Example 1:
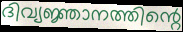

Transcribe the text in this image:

ദിവ്യജ്ഞാനത്തിന്റെ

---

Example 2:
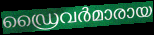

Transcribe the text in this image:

ഡ്രൈവർമാരായ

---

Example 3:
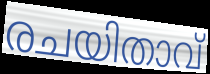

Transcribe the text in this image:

രചയിതാവ്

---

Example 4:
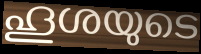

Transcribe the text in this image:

ഹൂശയുടെ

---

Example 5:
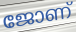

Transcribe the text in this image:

ജോണ്